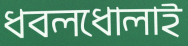
ধবলধোলাই